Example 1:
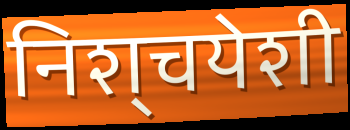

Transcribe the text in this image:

निश्चयेशी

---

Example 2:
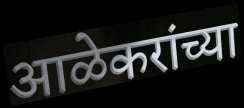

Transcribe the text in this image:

आळेकरांच्या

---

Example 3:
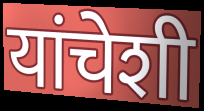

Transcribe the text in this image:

यांचेशी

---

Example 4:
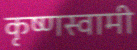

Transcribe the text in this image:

कृष्णस्वामी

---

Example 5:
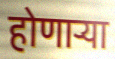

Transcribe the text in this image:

होणार्‍या